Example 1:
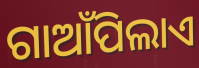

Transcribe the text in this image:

ଗାଆଁପିଲାଏ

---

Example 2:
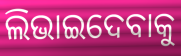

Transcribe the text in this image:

ଲିଭାଇଦେବାକୁ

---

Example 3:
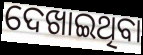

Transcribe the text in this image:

ଦେଖାଇଥିବା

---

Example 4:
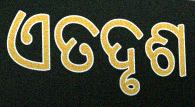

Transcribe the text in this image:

ଏତଦୃଶ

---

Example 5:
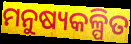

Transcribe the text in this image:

ମନୁଷ୍ୟକଳ୍ପିତ